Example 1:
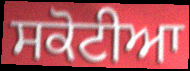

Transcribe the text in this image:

ਸਕੋਟੀਆ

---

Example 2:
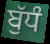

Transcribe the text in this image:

ਬੁੱਧੰ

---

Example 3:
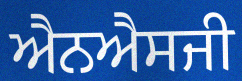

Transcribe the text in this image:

ਐਨਐਸਜੀ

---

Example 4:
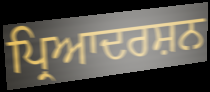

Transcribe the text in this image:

ਪ੍ਰਿਆਦਰਸ਼ਨ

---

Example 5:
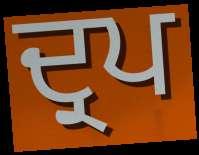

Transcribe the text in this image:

ਦ੍ਰਪ